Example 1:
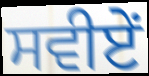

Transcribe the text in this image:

ਸਵੀਏਂ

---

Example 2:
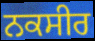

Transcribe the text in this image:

ਨਕਸੀਰ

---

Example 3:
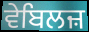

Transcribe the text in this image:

ਵੇਬਿਲਜ਼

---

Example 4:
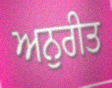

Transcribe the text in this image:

ਅਨੁਰੀਤ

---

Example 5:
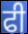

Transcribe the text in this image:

ਫੀ